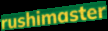
rushimaster